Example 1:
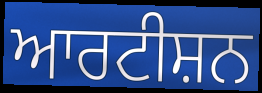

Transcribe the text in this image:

ਆਰਟੀਸ਼ਨ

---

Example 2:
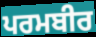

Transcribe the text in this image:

ਪਰਮਬੀਰ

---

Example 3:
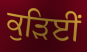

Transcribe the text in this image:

ਕੁੜਿਈਂ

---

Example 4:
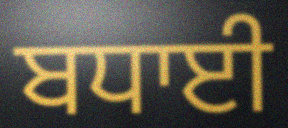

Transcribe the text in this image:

ਬਧਾਈ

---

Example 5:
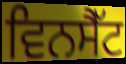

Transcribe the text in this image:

ਵਿਨਸੈੱਟ